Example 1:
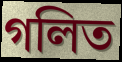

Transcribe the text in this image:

গলিত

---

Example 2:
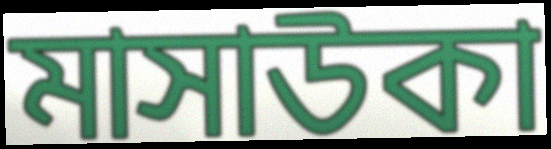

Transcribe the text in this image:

মাসাউকা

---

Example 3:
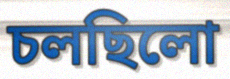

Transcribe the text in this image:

চলছিলো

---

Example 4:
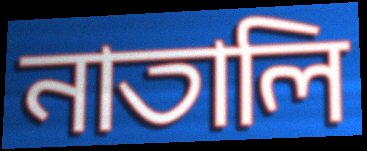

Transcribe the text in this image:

নাতালি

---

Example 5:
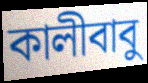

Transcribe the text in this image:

কালীবাবু